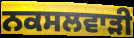
ਨਕਸਲਵਾੜੀ